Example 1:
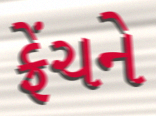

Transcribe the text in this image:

ફ્રેંચને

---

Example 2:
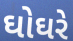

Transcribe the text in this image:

ઘોઘરે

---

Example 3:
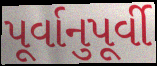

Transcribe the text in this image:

પૂર્વાનુપૂર્વી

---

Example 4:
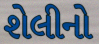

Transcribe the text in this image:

શેલીનો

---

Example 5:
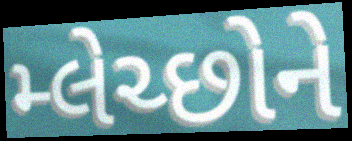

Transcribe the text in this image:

મ્લેચ્છોને